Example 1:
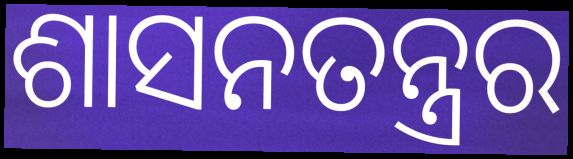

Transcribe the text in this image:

ଶାସନତନ୍ତ୍ରର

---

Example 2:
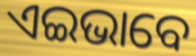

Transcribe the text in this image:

ଏଇଭାବେ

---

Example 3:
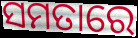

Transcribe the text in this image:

ସମତାରେ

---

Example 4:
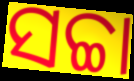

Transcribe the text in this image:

ସଚ୍ଚା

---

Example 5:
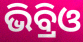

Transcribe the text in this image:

ଭିବ୍ରିଓ